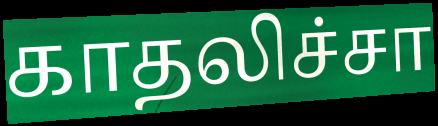
காதலிச்சா